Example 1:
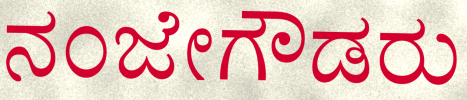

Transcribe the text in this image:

ನಂಜೇಗೌಡರು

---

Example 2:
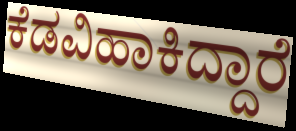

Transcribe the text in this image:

ಕೆಡವಿಹಾಕಿದ್ದಾರೆ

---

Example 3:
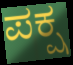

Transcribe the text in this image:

ಪಕ್ಷ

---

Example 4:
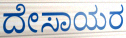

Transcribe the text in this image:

ದೇಸಾಯರ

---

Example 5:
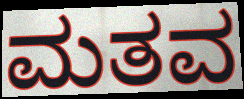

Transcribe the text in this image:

ಮತವ